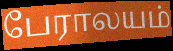
பேராலயம்